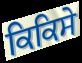
ਕਿਕਿਸੇ